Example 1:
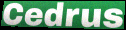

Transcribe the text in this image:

Cedrus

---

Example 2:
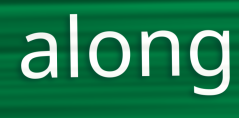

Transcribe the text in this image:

along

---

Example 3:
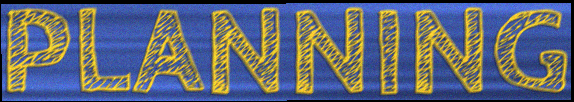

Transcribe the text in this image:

PLANNING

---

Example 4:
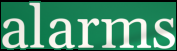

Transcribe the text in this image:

alarms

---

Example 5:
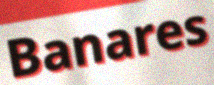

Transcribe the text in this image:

Banares